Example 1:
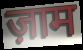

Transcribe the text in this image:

ज़ाम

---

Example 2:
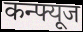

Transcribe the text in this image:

कन्फ्यूज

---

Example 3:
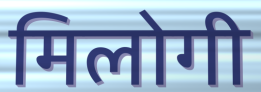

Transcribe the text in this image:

मिलोगी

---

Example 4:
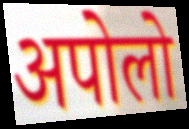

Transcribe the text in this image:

अपोलो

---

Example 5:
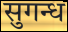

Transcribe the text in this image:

सुगन्ध